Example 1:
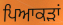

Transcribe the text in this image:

ਪਿਆਕੜਾਂ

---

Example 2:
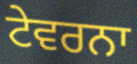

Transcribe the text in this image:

ਟੇਵਰਨਾ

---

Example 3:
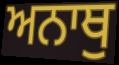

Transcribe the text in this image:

ਅਨਾਥੁ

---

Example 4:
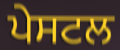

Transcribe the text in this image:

ਪੇਸਟਲ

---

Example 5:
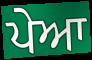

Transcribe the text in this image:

ਪੇਆ